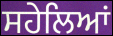
ਸਹੇਲਿਆਂ